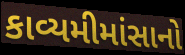
કાવ્યમીમાંસાનો